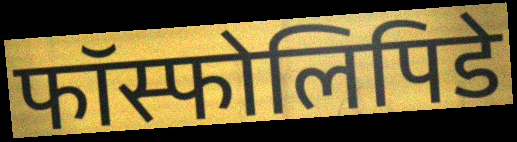
फॉस्फोलिपिडे